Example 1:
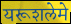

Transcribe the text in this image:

यरूशलेमे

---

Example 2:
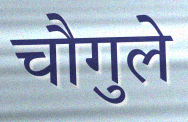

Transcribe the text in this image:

चौगुले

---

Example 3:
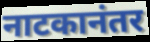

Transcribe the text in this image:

नाटकानंतर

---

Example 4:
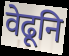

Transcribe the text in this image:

वेढूनि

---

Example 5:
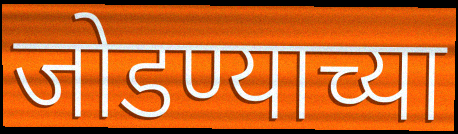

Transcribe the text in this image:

जोडण्याच्या